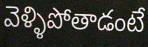
వెళ్ళిపోతాడంటే